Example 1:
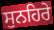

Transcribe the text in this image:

ਸੁਨਹਿਰੇ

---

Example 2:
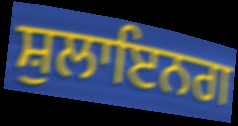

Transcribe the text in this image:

ਸ਼ੁਲਾਇਨਗ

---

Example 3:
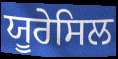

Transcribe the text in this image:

ਯੂਰੇਸਿਲ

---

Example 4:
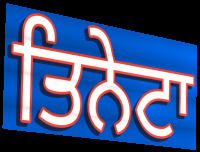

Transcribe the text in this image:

ਤਿਨੇਟਾ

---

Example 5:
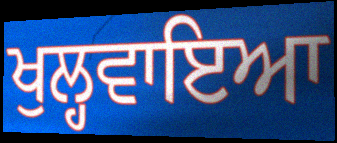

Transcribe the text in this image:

ਖੁਲ੍ਹਵਾਇਆ